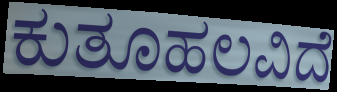
ಕುತೂಹಲವಿದೆ